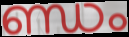
ണ്ഡം